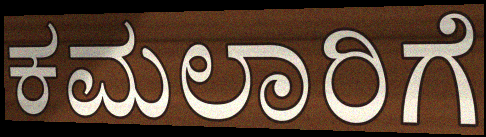
ಕಮಲಾರಿಗೆ